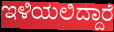
ಇಳಿಯಲಿದ್ದಾರೆ